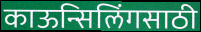
काऊन्सिलिंगसाठी